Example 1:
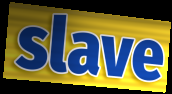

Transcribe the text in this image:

slave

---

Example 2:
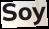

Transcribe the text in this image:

Soy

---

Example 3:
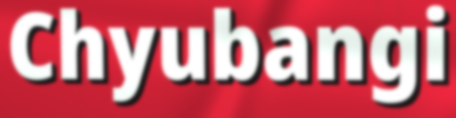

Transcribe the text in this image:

Chyubangi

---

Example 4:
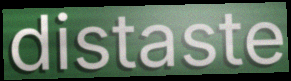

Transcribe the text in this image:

distaste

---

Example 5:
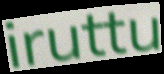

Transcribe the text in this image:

iruttu